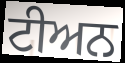
ਟੀਅਨ